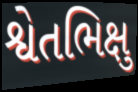
શ્વેતભિક્ષુ